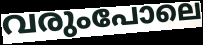
വരുംപോലെ